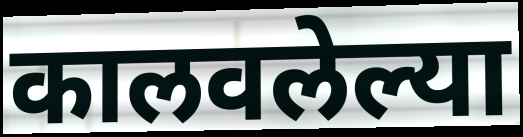
कालवलेल्या